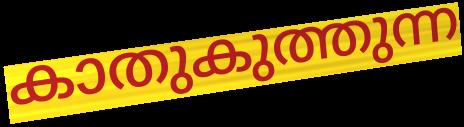
കാതുകുത്തുന്ന